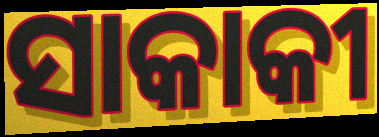
ସାକାକୀ